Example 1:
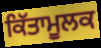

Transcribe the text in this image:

ਕਿੱਤਾਮੂਲਕ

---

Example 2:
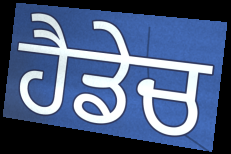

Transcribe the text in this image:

ਹੈਡੇਚ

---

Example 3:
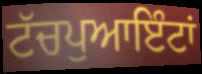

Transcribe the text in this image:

ਟੱਚਪੁਆਇੰਟਾਂ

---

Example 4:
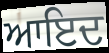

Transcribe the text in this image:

ਆਇਦ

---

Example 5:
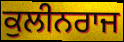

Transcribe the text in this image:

ਕੁਲੀਨਰਾਜ